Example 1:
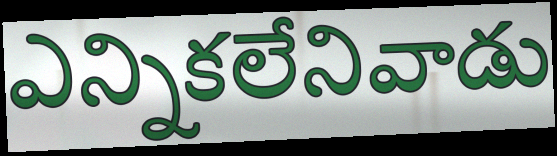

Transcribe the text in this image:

ఎన్నికలేనివాడు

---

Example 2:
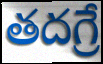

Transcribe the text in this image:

తదగ్రే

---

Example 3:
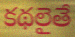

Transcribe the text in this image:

కథలైతే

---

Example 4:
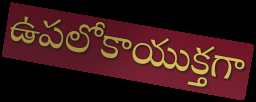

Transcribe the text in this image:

ఉపలోకాయుక్తగా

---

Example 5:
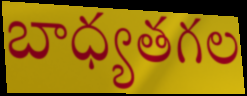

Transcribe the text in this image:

బాధ్యతగల